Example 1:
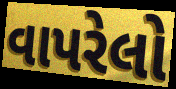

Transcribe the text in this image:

વાપરેલો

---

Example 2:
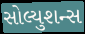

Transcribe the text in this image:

સોલ્યુશન્સ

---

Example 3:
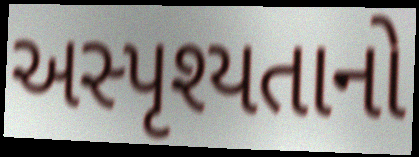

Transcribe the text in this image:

અસ્પૃશ્યતાનો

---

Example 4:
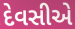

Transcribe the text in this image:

દેવસીએ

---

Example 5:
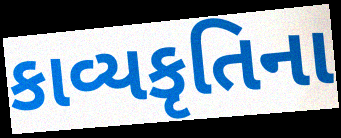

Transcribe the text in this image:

કાવ્યકૃતિના